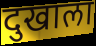
दुखाला